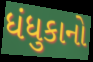
ધંધુકાનો